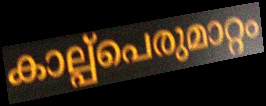
കാല്പ്പെരുമാറ്റം